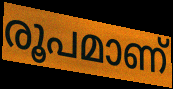
രൂപമാണ്